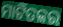
ମାଟିତଳର